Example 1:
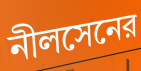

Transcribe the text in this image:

নীলসেনের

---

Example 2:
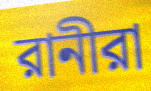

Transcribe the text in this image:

রানীরা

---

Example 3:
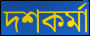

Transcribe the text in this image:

দশকর্মা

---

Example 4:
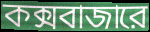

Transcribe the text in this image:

কক্সবাজারে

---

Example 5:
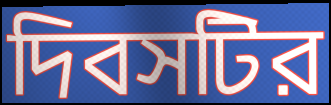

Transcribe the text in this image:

দিবসটির